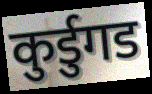
कुर्डुगड